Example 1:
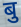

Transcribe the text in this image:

बु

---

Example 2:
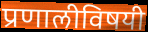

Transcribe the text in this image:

प्रणालीविषयी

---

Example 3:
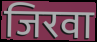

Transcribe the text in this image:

जिरवा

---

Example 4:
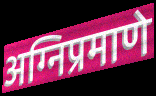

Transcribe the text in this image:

अग्निप्रमाणे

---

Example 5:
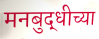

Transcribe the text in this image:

मनबुद्धीच्या